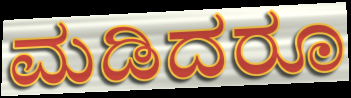
ಮಡಿದರೂ